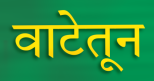
वाटेतून